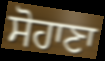
ਸੋਹਾਣਾ